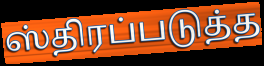
ஸ்திரப்படுத்த